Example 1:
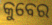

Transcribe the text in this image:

କୁବେର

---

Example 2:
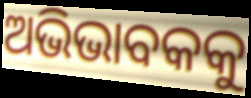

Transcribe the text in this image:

ଅଭିଭାବକକୁ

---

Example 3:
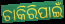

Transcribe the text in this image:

ଚାକିରିପାଇଁ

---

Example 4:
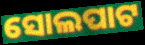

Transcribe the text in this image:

ସୋଲପାଟ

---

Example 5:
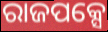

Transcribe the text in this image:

ରାଜପକ୍ସେ